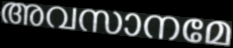
അവസാനമേ